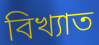
বিখ্যাত